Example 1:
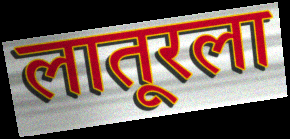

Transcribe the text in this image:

लातूरला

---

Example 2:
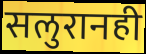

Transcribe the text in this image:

सलुरानही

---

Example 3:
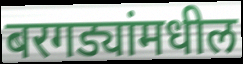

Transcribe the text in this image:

बरगड्यांमधील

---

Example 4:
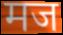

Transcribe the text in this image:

मज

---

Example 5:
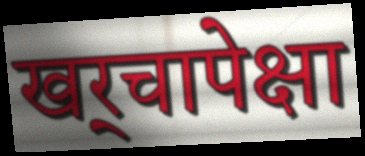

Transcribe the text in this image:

खर्चापेक्षा